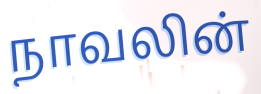
நாவலின்